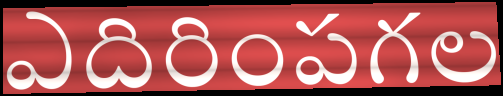
ఎదిరింపగల